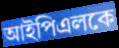
আইপিএলকে